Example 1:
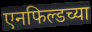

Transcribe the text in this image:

एनफिल्डच्या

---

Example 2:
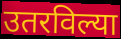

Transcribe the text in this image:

उतरविल्या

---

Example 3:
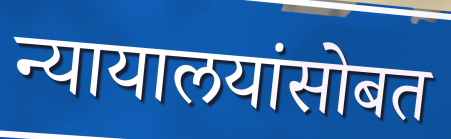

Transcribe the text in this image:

न्यायालयांसोबत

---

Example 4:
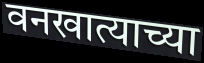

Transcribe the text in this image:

वनखात्याच्या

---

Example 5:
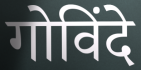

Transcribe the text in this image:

गोविंदे